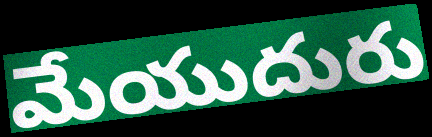
మేయుదురు